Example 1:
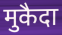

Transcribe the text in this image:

मुकैदा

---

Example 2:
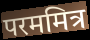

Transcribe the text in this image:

परममित्र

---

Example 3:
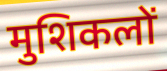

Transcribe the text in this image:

मुशिकलों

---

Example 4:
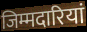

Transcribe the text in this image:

जिम्मदारियां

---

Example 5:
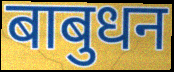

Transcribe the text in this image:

बाबुधन